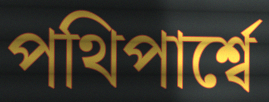
পথিপার্শ্বে